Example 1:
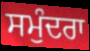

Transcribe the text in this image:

ਸਮੁੰਦਰਾ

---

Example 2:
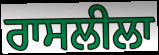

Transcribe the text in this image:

ਰਾਸਲੀਲਾ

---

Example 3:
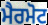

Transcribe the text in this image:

ਮੈਰਮੋਟ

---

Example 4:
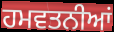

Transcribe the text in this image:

ਹਮਵਤਨੀਆਂ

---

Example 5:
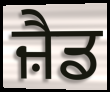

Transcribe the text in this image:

ਜ਼ੈਡ